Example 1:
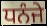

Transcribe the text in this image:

ਧਨੰਜੇ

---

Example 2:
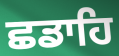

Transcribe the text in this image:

ਛਡਾਹਿ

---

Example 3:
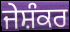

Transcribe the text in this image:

ਜੇਸ਼ੰਕਰ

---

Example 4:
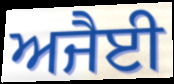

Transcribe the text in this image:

ਅਜੈਈ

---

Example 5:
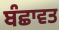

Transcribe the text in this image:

ਬੰਛਾਵਤ